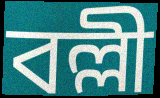
বল্লী